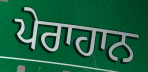
ਪੇਰਾਹਾਨ